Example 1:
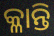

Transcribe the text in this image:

କ୍ଳାନ୍ତି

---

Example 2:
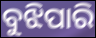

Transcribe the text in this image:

ବୁଝିପାରି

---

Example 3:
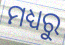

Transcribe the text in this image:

ମଧ୍ୟରୁ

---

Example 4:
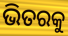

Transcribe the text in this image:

ଭିତରକୁ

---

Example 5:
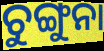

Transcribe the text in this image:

ଚୁଙ୍ଗୁନା